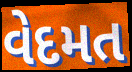
વેદમત